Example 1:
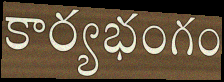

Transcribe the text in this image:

కార్యభంగం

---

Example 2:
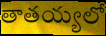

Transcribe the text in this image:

తాతయ్యలో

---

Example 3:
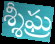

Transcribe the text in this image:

శ్శీఘ్ర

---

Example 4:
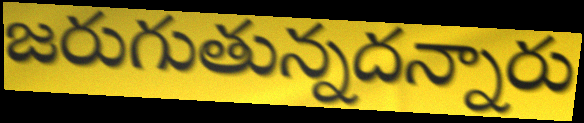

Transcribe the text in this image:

జరుగుతున్నదన్నారు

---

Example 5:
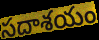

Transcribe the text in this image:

సదాశయం